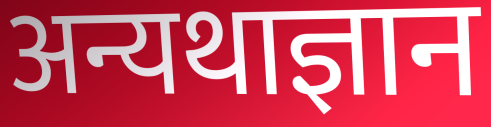
अन्यथाज्ञान